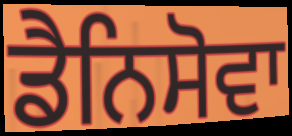
ਡੈਨਿਸੋਵਾ